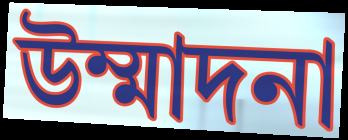
উম্মাদনা